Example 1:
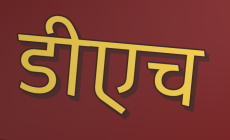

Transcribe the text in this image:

डीएच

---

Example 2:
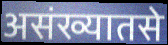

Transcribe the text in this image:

असंख्यातसे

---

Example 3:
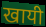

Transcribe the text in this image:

खायी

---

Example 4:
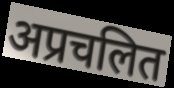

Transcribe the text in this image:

अप्रचलित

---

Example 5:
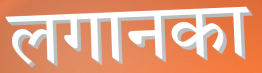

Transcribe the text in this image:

लगानका